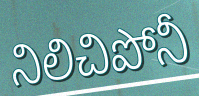
నిలిచిపోనీ